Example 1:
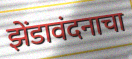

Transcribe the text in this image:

झेंडावंदनाचा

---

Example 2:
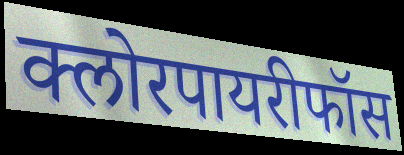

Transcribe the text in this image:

क्लोरपायरीफॉस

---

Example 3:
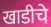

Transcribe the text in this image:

खाडीचे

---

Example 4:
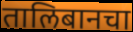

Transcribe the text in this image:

तालिबानचा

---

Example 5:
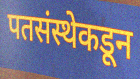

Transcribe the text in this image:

पतसंस्थेकडून